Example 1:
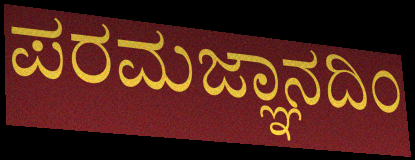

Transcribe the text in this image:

ಪರಮಜ್ಞಾನದಿಂ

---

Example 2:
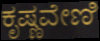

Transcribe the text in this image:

ಕೃಷ್ಣವೇಣಿ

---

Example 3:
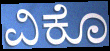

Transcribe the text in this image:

ವಿಕೊ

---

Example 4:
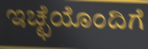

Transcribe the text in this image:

ಇಚ್ಛೆಯೊಂದಿಗೆ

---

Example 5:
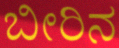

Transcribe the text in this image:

ಬೀರಿನ